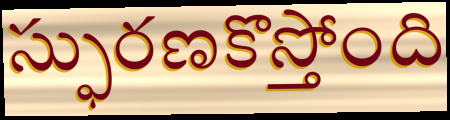
స్ఫురణకొస్తోంది